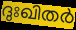
ദുഃഖിതർ